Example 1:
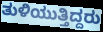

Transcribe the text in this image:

ತುಳಿಯುತ್ತಿದ್ದರು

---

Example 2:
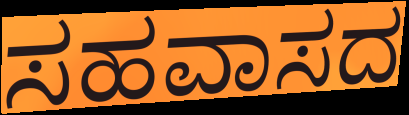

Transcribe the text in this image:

ಸಹವಾಸದ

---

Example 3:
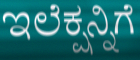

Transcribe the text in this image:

ಇಲೆಕ್ಷನ್ನಿಗೆ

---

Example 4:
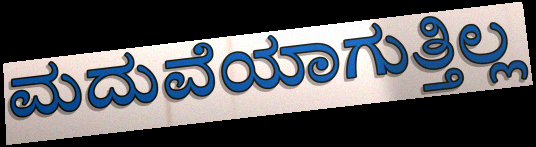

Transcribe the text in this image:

ಮದುವೆಯಾಗುತ್ತಿಲ್ಲ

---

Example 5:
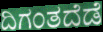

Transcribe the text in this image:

ದಿಗಂತದೆಡೆ